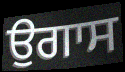
ਉਗਾਸ